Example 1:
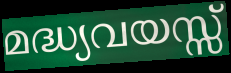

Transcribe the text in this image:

മദ്ധ്യവയസ്സ്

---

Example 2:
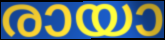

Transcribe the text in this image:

രായാ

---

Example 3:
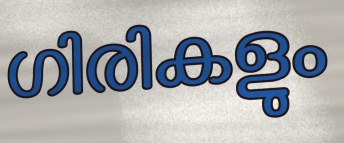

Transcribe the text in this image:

ഗിരികളും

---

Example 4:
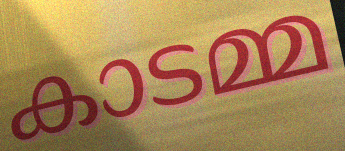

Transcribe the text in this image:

കാടമ്മ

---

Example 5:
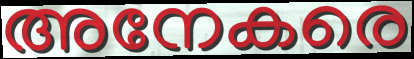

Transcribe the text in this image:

അനേകരെ